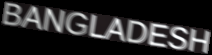
BANGLADESH